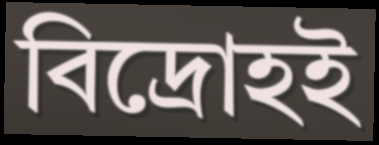
বিদ্রোহই